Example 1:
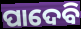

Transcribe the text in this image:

ପାଦେବି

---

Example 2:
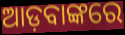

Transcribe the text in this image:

ଆଡ଼ବାଙ୍କରେ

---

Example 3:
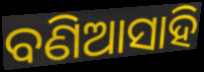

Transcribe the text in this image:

ବଣିଆସାହି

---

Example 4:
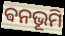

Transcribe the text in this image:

ଵନଭୂମି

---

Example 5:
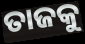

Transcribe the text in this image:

ତାଜକୁ